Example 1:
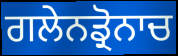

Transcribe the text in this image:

ਗਲੇਨਡ੍ਰੋਨਾਚ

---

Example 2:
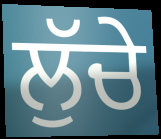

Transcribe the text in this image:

ਲੁੱਚੇ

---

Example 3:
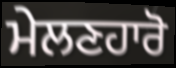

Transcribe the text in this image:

ਮੇਲਣਹਾਰੋ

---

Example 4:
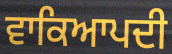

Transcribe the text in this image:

ਵਾਕਿਆਪਦੀ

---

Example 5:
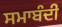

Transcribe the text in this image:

ਸਮਾਬੰਦੀ